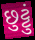
છુટ્ટું